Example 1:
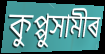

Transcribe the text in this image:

কুপ্পুসামীৰ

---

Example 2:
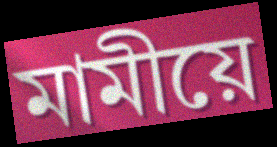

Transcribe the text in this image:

মামীয়ে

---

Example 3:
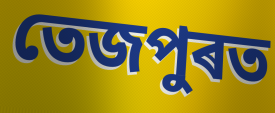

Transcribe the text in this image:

তেজপুৰত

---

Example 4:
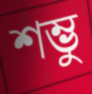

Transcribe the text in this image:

শম্ভু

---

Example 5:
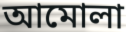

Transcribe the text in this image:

আমোলা